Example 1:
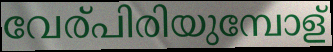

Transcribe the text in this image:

വേര്പിരിയുമ്പോള്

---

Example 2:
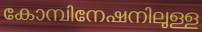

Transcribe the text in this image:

കോമ്പിനേഷനിലുള്ള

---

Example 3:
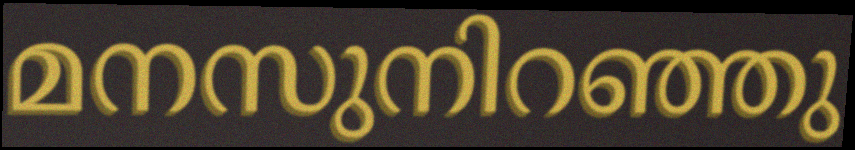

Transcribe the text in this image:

മനസുനിറഞ്ഞു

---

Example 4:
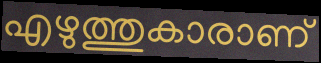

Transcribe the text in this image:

എഴുത്തുകാരാണ്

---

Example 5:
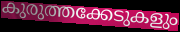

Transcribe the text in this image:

കുരുത്തക്കേടുകളും